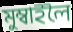
মুম্বাইলৈ